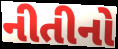
નીતીનો